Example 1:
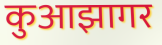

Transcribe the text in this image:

कुआझागर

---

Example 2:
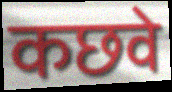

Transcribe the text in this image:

कछवे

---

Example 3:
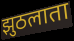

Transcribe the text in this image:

झुठलाता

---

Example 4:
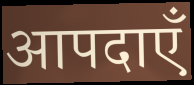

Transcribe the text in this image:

आपदाएँ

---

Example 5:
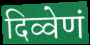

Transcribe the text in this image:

दिव्वेणं